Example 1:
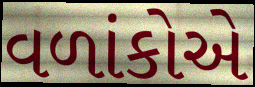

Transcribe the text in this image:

વળાંકોએ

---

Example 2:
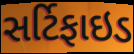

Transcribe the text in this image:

સર્ટિફાઇડ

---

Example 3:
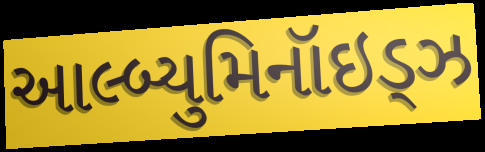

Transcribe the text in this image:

આલ્બ્યુમિનૉઇડ્ઝ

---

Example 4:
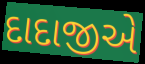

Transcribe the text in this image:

દાદાજીએ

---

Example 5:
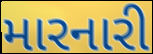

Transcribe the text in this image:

મારનારી